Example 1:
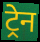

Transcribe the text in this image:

ट्रेन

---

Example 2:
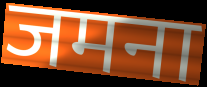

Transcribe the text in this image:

जमना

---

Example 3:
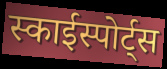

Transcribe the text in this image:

स्काईस्पोर्ट्स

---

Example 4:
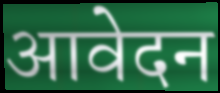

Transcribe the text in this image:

आवेदन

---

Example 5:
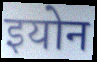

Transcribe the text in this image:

इयोन